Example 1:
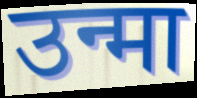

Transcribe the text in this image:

उन्मा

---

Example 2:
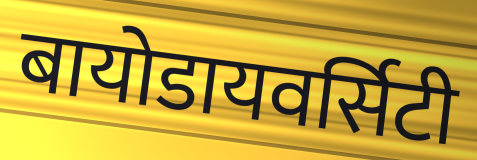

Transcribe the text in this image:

बायोडायवर्सिटी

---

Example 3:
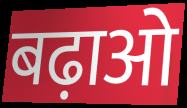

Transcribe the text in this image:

बढ़ाओ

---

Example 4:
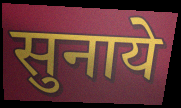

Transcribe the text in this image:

सुनाये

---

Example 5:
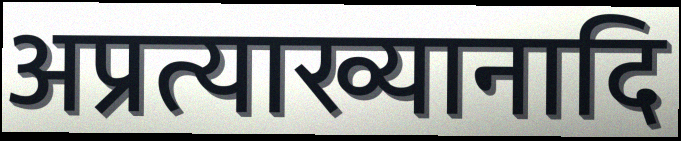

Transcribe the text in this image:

अप्रत्याख्यानादि